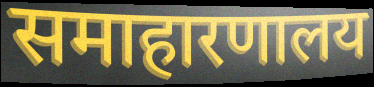
समाहारणालय